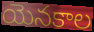
యెనకాల